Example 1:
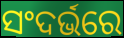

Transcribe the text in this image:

ସଂଦର୍ଭରେ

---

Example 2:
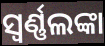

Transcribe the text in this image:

ସ୍ବର୍ଣ୍ଣଲଙ୍କା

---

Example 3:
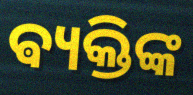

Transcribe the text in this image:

ଵ୍ୟକ୍ତିଙ୍କ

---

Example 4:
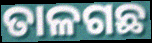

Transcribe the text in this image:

ତାଳଗଛ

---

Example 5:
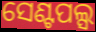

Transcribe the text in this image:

ସେଣ୍ଟପଲ୍ସ